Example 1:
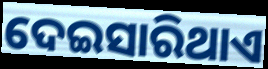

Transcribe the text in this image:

ଦେଇସାରିଥାଏ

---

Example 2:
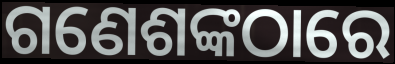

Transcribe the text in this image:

ଗଣେଶଙ୍କଠାରେ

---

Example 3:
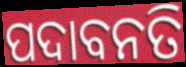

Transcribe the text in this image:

ପଦାବନତି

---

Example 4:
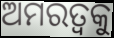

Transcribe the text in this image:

ଅମରତ୍ୱକୁ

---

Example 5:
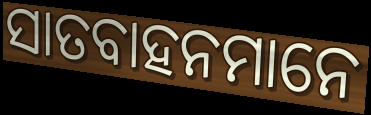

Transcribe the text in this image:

ସାତବାହନମାନେ